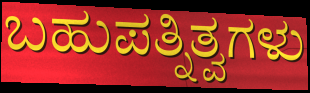
ಬಹುಪತ್ನಿತ್ವಗಳು